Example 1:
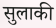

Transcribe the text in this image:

सुलाकी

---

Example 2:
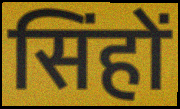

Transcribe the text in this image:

सिंहों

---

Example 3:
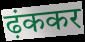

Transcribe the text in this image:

ढ़ंककर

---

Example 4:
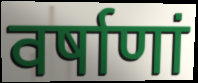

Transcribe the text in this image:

वर्षाणां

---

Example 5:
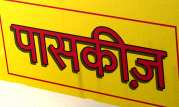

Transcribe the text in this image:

पासकीज़